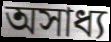
অসাধ্য